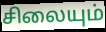
சிலையும்